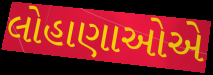
લોહાણાઓએ